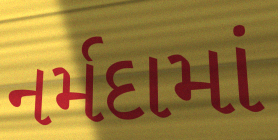
નર્મદામાં